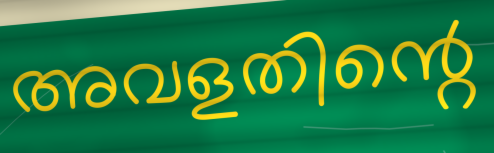
അവളതിന്റെ